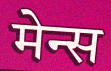
मेन्स